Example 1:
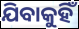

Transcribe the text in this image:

ଯିବାକୁହିଁ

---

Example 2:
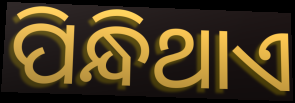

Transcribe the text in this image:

ପିନ୍ଧିଥାଏ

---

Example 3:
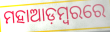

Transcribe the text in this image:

ମହାଆଡ଼ମ୍ୱରରେ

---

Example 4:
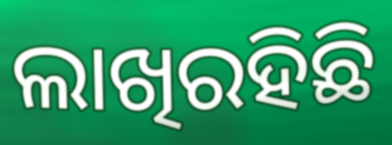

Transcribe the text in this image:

ଲାଖିରହିଛି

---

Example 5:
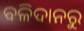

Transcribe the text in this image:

ବଳିଦାନରୁ